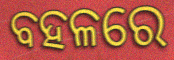
ବହଳରେ